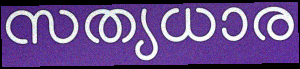
സത്യധാര